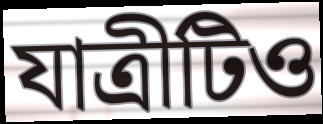
যাত্রীটিও